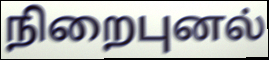
நிறைபுனல்